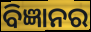
ବିଜ୍ଞାନର